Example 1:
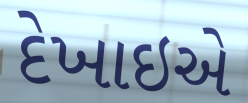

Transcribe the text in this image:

દેખાઇએ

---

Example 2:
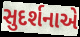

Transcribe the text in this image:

સુદર્શનાએ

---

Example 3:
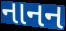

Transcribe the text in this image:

નાનન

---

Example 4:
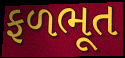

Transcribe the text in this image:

ફળભૂત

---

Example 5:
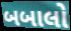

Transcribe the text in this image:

બબાલો